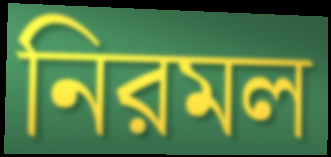
নিরমল